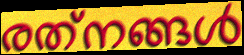
രത്‌നങ്ങൾ